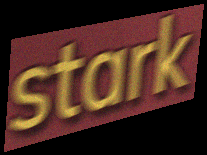
stark